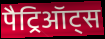
पैट्रिऑट्स